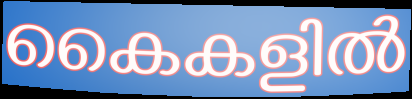
കൈകളിൽ